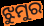
ଝୁମୁର